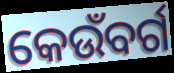
କେଉଁବର୍ଗ